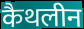
कैथलीन